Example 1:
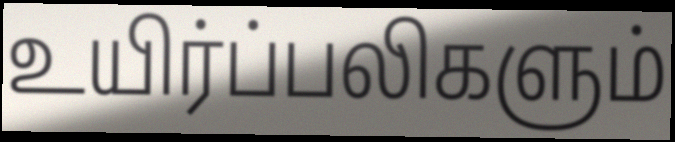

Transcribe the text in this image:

உயிர்ப்பலிகளும்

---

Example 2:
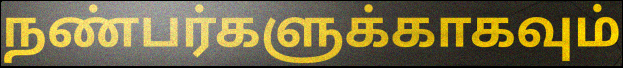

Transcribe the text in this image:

நண்பர்களுக்காகவும்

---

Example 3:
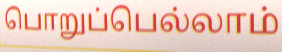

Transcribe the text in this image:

பொறுப்பெல்லாம்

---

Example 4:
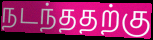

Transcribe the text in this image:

நடந்ததற்கு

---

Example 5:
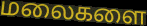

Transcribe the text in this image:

மலைகளை